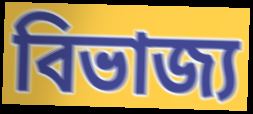
বিভাজ্য